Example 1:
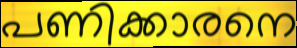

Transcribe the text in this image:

പണിക്കാരനെ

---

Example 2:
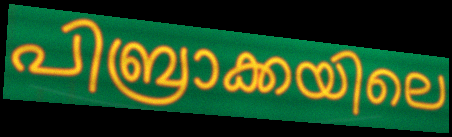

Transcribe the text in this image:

പിബ്രാക്കയിലെ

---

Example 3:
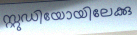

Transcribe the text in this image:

സ്റ്റുഡിയോയിലേക്കു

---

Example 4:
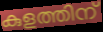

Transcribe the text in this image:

കുളത്തിന്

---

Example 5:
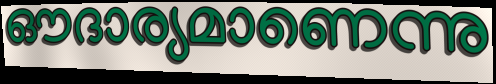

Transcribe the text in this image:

ഔദാര്യമാണെന്നു